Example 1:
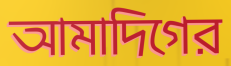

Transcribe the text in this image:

আমাদিগের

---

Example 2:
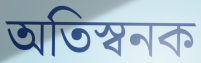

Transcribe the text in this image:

অতিস্বনক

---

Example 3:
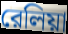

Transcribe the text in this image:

রেলিয়া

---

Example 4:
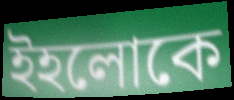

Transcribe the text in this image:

ইহলোকে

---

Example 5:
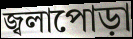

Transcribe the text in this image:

জ্বলাপোড়া